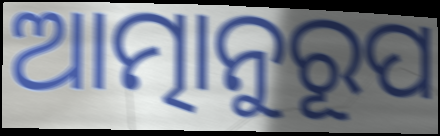
ଆତ୍ମାନୁରୂପ